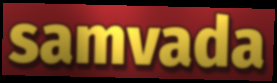
samvada